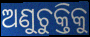
ଅଣୁଚୁକ୍ତିକୁ